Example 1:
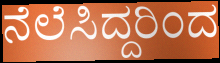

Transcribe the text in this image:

ನೆಲೆಸಿದ್ದರಿಂದ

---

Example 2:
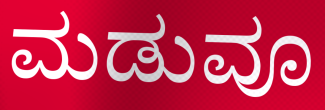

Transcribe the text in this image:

ಮಡುವೂ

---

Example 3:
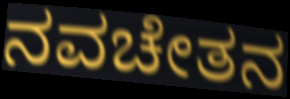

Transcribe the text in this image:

ನವಚೇತನ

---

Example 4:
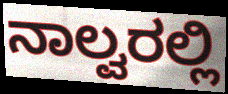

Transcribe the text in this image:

ನಾಲ್ವರಲ್ಲಿ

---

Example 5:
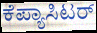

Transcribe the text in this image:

ಕೆಪ್ಯಾಸಿಟರ್